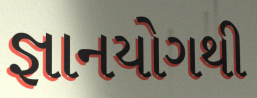
જ્ઞાનયોગથી